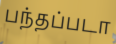
பந்தப்படா